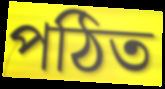
পঠিত